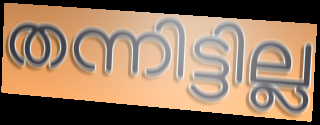
തന്നിട്ടില്ല